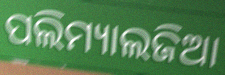
ପଲିମ୍ୟାଲଜିଆ